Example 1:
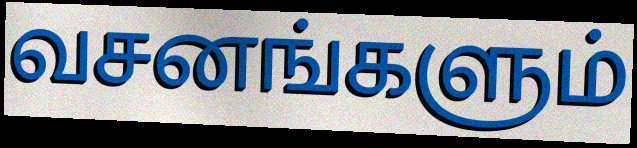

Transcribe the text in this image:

வசனங்களும்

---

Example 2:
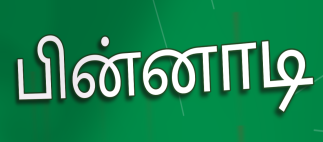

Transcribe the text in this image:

பின்னாடி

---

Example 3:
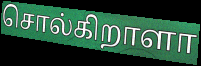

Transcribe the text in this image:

சொல்கிறாளா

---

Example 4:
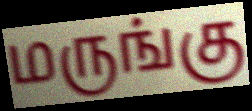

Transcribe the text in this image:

மருங்கு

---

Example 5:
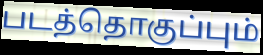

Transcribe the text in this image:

படத்தொகுப்பும்